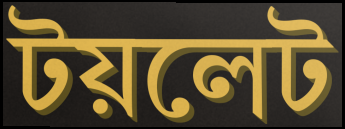
টয়লেট